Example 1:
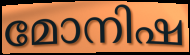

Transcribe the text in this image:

മോനിഷ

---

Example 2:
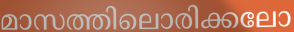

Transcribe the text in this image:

മാസത്തിലൊരിക്കലോ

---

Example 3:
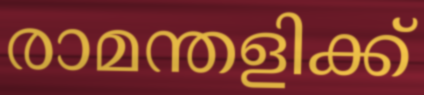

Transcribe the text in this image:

രാമന്തളിക്ക്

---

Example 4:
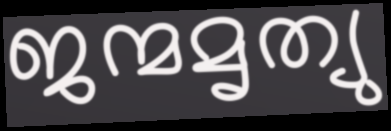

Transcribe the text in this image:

ജന്മമൃത്യു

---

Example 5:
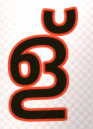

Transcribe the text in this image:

ള്